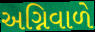
અગ્નિવાળે